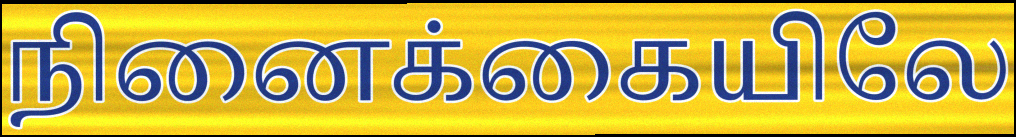
நினைக்கையிலே